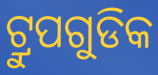
ଟ୍ରୁପଗୁଡିକ